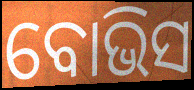
ବୋଭିସ